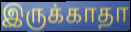
இருக்காதா